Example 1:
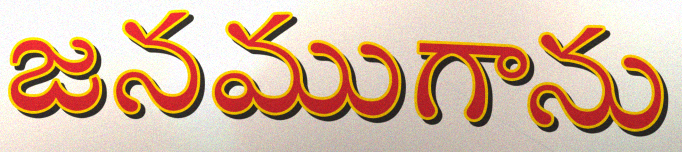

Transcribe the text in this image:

జనముగాను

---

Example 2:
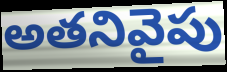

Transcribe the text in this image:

అతనివైపు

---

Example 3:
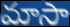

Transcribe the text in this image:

మాసా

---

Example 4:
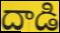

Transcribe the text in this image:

దాడి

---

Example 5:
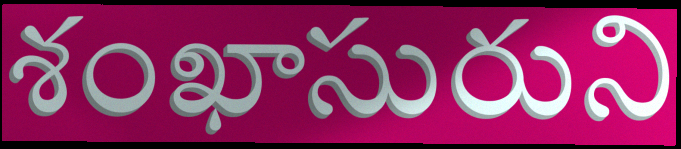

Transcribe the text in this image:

శంఖాసురుని